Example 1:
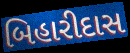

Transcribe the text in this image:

બિહારીદાસ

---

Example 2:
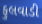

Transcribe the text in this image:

ફુલવાડી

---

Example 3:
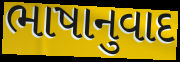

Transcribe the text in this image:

ભાષાનુવાદ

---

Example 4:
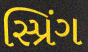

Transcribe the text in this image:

સ્પ્રિંગ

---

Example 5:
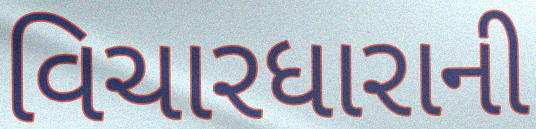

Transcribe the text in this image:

વિચારધારાની